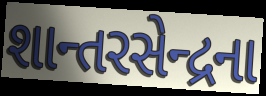
શાન્તરસેન્દ્રના